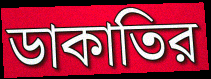
ডাকাতির